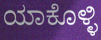
ಯಾಕೊಳ್ಳಿ